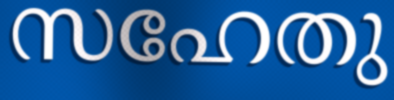
സഹേതു